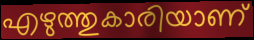
എഴുത്തുകാരിയാണ്